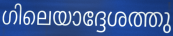
ഗിലെയാദ്ദേശത്തു